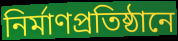
নির্মাণপ্রতিষ্ঠানে